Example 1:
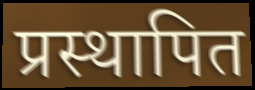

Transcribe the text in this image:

प्रस्थापित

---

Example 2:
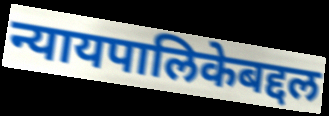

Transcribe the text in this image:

न्यायपालिकेबद्दल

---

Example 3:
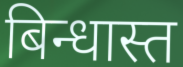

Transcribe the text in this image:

बिन्धास्त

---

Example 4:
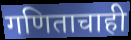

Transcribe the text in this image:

गणिताचाही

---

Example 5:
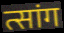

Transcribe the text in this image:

त्सांग